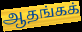
ஆதங்கக்